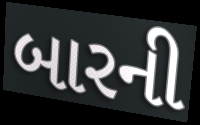
બારની